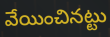
వేయించినట్టు